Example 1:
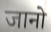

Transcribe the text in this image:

जानो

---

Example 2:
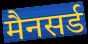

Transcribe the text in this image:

मैनसर्ड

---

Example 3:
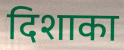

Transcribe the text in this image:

दिशाका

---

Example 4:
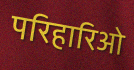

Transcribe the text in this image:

परिहारिओ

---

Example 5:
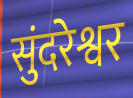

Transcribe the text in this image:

सुंदरेश्वर